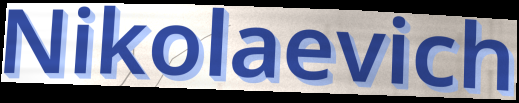
Nikolaevich